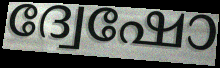
ദ്വേഷോ